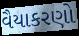
વૈયાકરણો